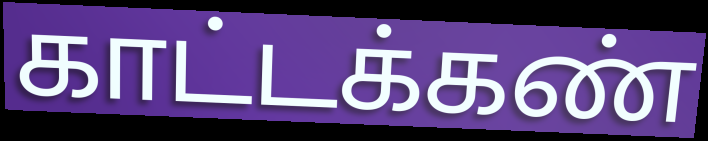
காட்டக்கண்